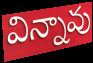
విన్నావు